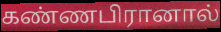
கண்ணபிரானால்